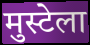
मुस्टेला